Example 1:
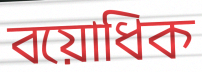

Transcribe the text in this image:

বয়োধিক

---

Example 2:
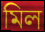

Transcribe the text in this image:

মিল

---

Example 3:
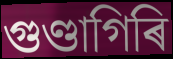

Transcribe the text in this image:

গুণ্ডাগিৰি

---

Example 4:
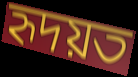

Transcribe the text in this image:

হৃদয়ত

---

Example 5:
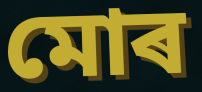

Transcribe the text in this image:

মোৰ